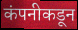
कंपनीकडून